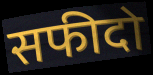
सफीदो